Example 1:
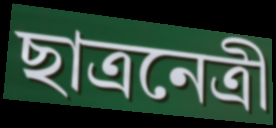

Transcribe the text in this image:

ছাত্রনেত্রী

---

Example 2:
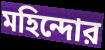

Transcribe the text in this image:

মহিন্দোর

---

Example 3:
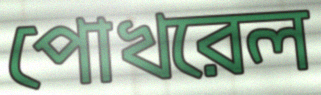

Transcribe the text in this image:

পোখরেল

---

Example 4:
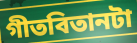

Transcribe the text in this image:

গীতবিতানটা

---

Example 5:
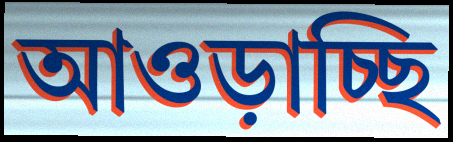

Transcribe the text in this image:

আওড়াচ্ছি